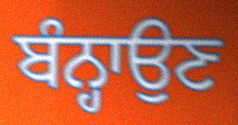
ਬੰਨ੍ਹਾਉਣ